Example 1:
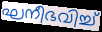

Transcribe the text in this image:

ഘനീഭവിച്ച്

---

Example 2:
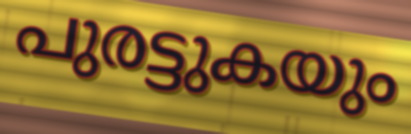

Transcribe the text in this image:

പുരട്ടുകയും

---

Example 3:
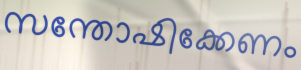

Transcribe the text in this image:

സന്തോഷിക്കേണം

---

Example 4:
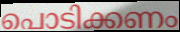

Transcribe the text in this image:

പൊടിക്കണം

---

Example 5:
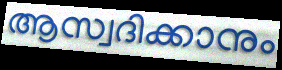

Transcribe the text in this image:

ആസ്വദിക്കാനും